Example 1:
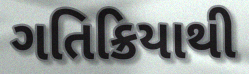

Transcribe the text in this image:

ગતિક્રિયાથી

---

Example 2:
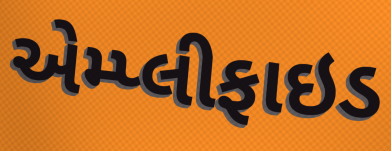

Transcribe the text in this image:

એમ્પ્લીફાઇડ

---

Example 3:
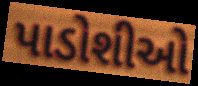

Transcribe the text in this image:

પાડોશીઓ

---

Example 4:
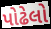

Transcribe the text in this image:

પોઢેલો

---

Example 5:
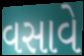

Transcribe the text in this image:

વસાવે